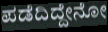
ಪಡೆದಿದ್ದೇನೋ